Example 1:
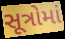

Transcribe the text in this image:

સૂત્રોમાં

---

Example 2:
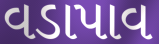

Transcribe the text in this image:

વડાપાવ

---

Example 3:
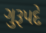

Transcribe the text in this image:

ગુરૂપદે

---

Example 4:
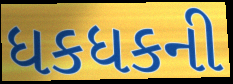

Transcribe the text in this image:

ધકધકની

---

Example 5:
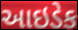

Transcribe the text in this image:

આઇડેક